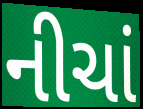
નીચાં